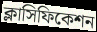
ক্লাসিফিকেশন